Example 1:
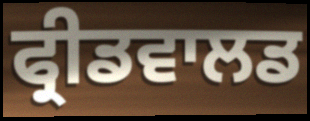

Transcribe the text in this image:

ਫ੍ਰੀਡਵਾਲਡ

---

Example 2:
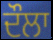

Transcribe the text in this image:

ਦੌਲਾ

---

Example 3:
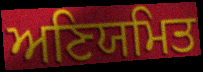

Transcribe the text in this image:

ਅਣਿਯਮਿਤ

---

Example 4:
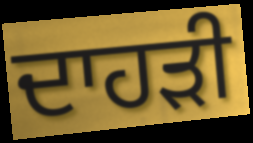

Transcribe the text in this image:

ਦਾਹੜੀ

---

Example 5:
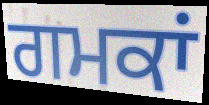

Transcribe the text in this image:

ਗਮਕਾਂ